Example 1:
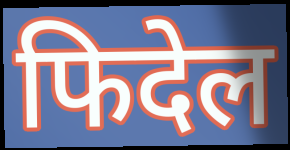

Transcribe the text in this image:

फिदेल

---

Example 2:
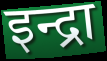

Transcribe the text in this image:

इन्द्रा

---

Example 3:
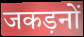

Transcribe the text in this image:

जकड़नों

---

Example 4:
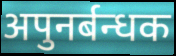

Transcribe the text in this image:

अपुनर्बन्धक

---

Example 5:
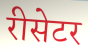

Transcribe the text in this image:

रीसेटर